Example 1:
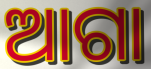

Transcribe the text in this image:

ଆଗା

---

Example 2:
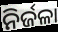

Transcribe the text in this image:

ନିର୍ଜଳା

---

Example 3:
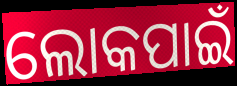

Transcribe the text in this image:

ଲୋକପାଇଁ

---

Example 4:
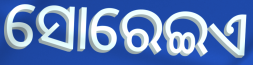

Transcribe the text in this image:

ସୋରେଇଏ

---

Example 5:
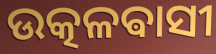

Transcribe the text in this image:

ଉତ୍କଳଵାସୀ